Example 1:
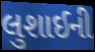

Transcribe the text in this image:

લુશાઈની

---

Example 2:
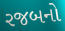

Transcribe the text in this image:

રજબનો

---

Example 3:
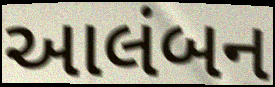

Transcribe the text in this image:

આલંબન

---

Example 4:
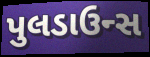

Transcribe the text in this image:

પુલડાઉન્સ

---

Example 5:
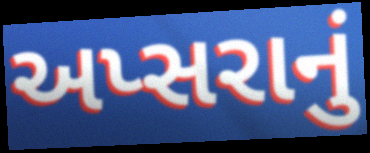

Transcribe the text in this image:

અપ્સરાનું